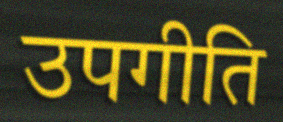
उपगीति